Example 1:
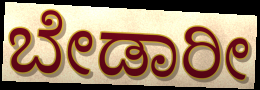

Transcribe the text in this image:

ಬೇಡಾರೀ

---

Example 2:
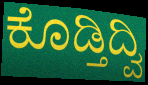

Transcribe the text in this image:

ಕೊಡ್ತಿದ್ವಿ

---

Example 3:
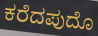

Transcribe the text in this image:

ಕರೆದಪುದೊ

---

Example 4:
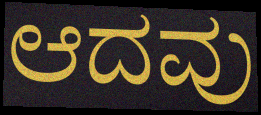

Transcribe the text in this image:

ಆದವು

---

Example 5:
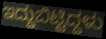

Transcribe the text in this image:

ಇದ್ದುಬಿಟ್ಟಿದ್ದಳು